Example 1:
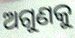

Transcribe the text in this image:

ଅଗୁଣକୁ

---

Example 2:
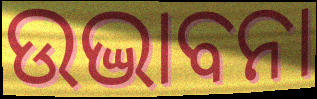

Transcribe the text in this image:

ଉଦ୍ଭାବନା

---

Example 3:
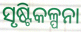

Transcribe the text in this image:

ସୃଷ୍ଟିକଳ୍ପନା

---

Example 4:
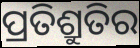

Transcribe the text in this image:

ପ୍ରତିଶ୍ରୁତିର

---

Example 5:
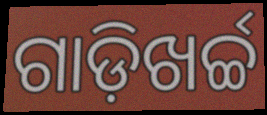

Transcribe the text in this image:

ଗାଡ଼ିଖର୍ଚ୍ଚ